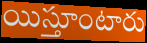
యిస్తూంటారు